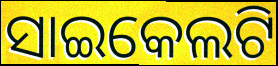
ସାଇକେଲଟି